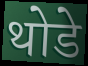
थोडे